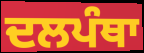
ਦਲਪੰਥਾ